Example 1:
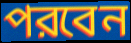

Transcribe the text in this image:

পরবেন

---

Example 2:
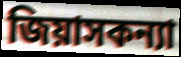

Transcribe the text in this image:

জিয়াসকন্যা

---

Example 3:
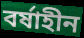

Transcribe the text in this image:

বর্ষাহীন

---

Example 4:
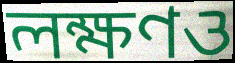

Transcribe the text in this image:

লক্ষণও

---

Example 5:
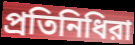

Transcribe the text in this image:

প্রতিনিধিরা